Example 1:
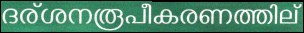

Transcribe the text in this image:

ദര്ശനരൂപീകരണത്തില്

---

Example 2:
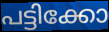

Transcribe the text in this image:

പട്ടിക്കോ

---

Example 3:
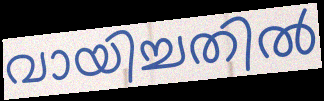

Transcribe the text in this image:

വായിച്ചതിൽ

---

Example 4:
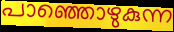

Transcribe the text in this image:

പാഞ്ഞൊഴുകുന്ന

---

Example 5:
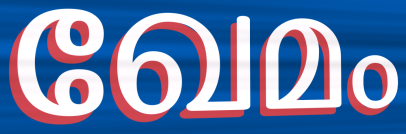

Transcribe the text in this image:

ഖേമം